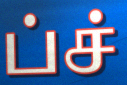
ப்ச்